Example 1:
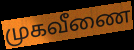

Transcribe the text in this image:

முகவீணை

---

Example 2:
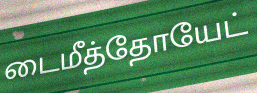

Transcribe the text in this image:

டைமீத்தோயேட்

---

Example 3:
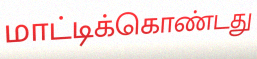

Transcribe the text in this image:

மாட்டிக்கொண்டது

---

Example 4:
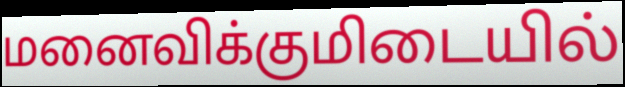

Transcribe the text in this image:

மனைவிக்குமிடையில்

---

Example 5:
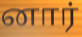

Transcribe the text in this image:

னார்